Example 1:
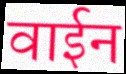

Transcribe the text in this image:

वाईन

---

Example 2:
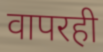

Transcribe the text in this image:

वापरही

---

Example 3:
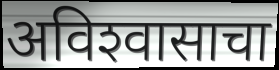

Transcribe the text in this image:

अविश्‍वासाचा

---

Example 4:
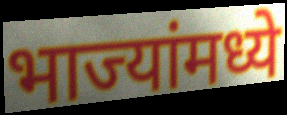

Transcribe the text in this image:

भाज्यांमध्ये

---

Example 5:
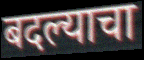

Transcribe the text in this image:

बदल्याचा